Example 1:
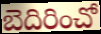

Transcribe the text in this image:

బెదిరించో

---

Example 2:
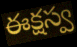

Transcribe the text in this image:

ఈక్షస్వ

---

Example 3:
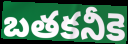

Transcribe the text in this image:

బతకనీకె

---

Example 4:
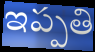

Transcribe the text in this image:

ఇప్పతి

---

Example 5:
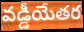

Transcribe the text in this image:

వడ్డీయేతర